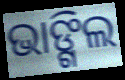
ଭାଙ୍ଗିଲ